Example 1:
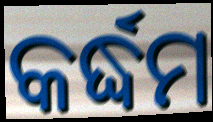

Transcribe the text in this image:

କର୍ଦ୍ଧମ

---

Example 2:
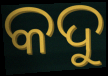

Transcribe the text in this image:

କଦୁ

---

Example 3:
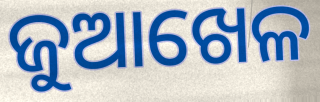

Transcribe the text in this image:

ଜୁଆଖେଳ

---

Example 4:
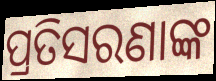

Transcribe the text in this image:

ପ୍ରତିସରଣାଙ୍କ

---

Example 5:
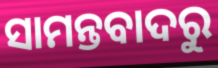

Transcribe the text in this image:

ସାମନ୍ତବାଦରୁ